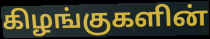
கிழங்குகளின்